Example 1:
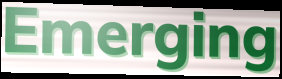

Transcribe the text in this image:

Emerging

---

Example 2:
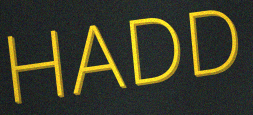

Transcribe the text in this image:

HADD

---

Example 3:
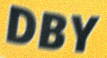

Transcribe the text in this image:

DBY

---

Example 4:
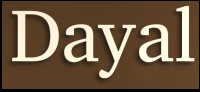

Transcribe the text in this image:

Dayal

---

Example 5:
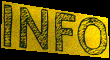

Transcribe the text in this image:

INFO